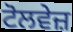
ਟੋਲਵੇਜ਼